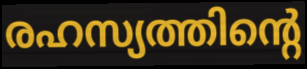
രഹസ്യത്തിന്റെ